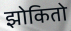
झोकितो